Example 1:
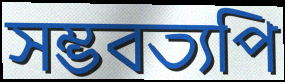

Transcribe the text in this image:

সম্ভবত্যপি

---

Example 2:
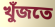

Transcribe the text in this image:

খুঁজতে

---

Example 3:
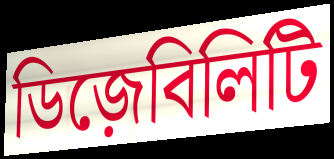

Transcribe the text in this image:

ডিজ়েবিলিটি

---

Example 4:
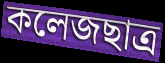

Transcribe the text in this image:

কলেজছাত্র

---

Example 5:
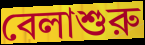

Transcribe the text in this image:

বেলাশুরু